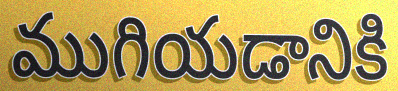
ముగియడానికి